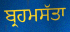
ਬ੍ਰਹਮਸੱਤਾ